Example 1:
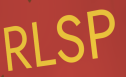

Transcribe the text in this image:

RLSP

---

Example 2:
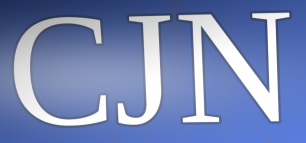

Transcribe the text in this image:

CJN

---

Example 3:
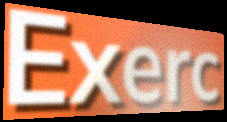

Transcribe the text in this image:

Exerc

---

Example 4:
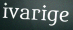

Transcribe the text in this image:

ivarige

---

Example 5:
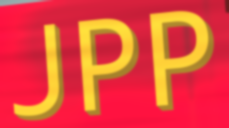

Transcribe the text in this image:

JPP